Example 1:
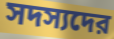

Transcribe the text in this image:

সদস্যদের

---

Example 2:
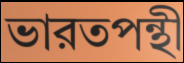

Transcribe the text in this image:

ভারতপন্থী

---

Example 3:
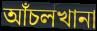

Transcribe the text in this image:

আঁচলখানা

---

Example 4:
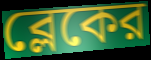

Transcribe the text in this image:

ব্লেকের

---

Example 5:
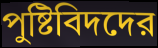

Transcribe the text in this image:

পুষ্টিবিদদের